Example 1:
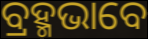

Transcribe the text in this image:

ବ୍ରହ୍ମଭାବେ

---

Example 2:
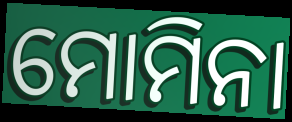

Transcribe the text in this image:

ମୋମିନା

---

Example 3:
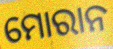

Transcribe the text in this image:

ମୋରାନ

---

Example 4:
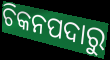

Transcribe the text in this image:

ଚିକନପଦାରୁ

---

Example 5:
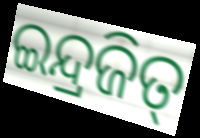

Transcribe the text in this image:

ଇନ୍ଦ୍ରଜିତ୍